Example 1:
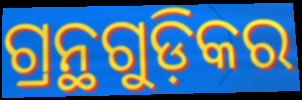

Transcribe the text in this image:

ଗ୍ରନ୍ଥଗୁଡ଼ିକର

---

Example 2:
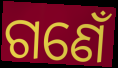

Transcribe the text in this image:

ଗଣେଁ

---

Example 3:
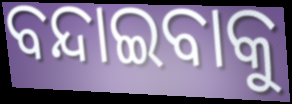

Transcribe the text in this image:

ବନ୍ଦାଇବାକୁ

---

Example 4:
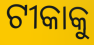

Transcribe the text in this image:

ଟୀକାକୁ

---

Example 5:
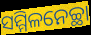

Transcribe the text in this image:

ସମ୍ମିଳନେଚ୍ଛା